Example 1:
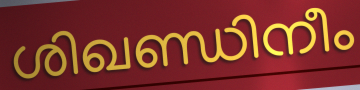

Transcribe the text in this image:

ശിഖണ്ഡിനീം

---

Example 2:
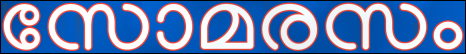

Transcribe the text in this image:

സോമരസം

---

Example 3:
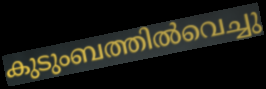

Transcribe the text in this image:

കുടുംബത്തിൽവെച്ചു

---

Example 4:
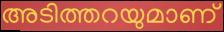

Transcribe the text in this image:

അടിത്തറയുമാണ്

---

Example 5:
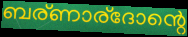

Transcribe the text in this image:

ബര്ണാര്ദോന്റെ